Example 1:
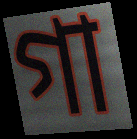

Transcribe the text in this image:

গা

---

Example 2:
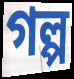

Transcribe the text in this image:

গল্প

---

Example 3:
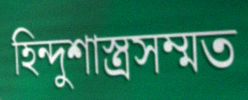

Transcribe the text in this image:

হিন্দুশাস্ত্রসম্মত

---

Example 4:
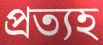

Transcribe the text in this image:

প্রত্যহ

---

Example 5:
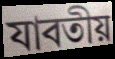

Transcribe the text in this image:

যাবতীয়